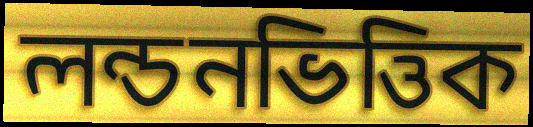
লন্ডনভিত্তিক